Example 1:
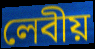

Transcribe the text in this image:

লেবীয়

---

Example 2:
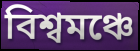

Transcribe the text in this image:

বিশ্বমঞ্চে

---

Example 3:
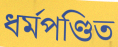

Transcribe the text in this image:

ধর্মপণ্ডিত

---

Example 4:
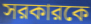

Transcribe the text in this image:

সরকারকে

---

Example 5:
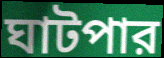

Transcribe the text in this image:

ঘাটপার